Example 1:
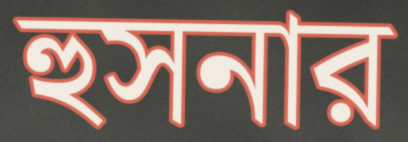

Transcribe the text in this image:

হুসনার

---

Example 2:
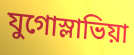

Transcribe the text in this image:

যুগোস্লাভিয়া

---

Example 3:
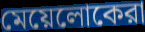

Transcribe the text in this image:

মেয়েলোকেরা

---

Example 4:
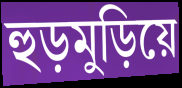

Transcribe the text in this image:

হুড়মুড়িয়ে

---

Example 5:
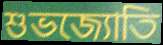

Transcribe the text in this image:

শুভজ্যোতি